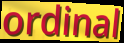
ordinal